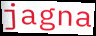
jagna